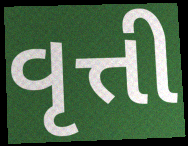
વૃત્તી